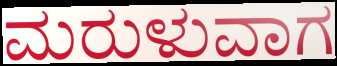
ಮರುಳುವಾಗ